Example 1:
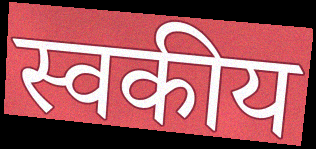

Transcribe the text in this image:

स्वकीय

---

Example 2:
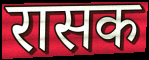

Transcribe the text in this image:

रासक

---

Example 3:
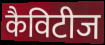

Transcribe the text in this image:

कैविटीज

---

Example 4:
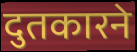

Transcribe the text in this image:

दुतकारने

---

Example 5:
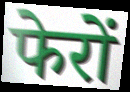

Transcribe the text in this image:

फेरों